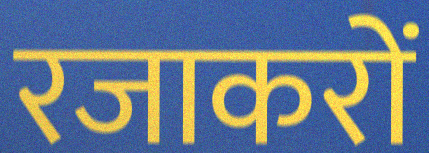
रजाकरों